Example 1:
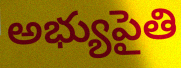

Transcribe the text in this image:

అభ్యుపైతి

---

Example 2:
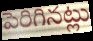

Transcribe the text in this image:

పెరిగినట్లు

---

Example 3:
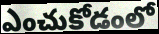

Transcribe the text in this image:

ఎంచుకోడంలో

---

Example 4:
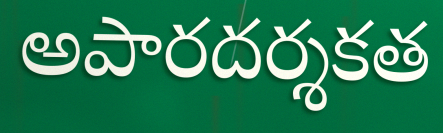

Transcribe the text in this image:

అపారదర్శకత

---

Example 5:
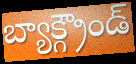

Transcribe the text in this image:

బ్యాక్గ్రౌండ్